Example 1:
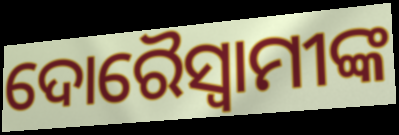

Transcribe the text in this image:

ଦୋରୈସ୍ବାମୀଙ୍କ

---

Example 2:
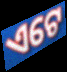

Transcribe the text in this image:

ଏଟେ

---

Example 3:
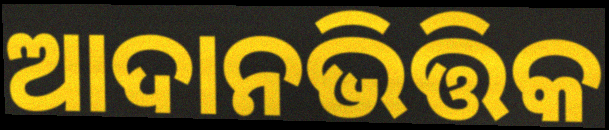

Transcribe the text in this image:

ଆଦାନଭିତ୍ତିକ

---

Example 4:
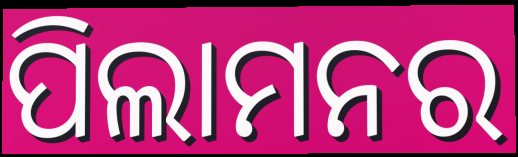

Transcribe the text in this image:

ପିଲାମନର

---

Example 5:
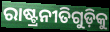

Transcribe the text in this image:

ରାଷ୍ଟ୍ରନୀତିଗୁଡ଼ିକୁ